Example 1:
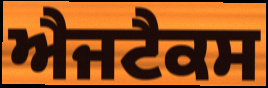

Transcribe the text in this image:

ਐਜਟੈਕਸ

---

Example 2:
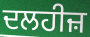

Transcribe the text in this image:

ਦਲਹੀਜ਼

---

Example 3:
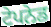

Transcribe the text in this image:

ਟੇਪਨੇਡ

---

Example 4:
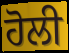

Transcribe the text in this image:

ਹੋਲੀ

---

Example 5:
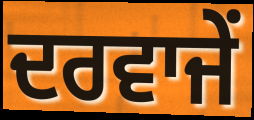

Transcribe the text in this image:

ਦਰਵਾਜੇਂ